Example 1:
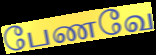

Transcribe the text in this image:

பேணவே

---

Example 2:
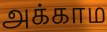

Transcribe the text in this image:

அக்காம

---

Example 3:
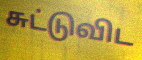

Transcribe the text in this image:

சுட்டுவிட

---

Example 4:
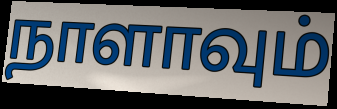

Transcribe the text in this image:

நாளாவும்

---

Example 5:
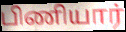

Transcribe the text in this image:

பிணியார்